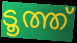
ടൂത്ത്